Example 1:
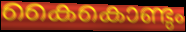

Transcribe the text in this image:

കൈകൊണ്ടും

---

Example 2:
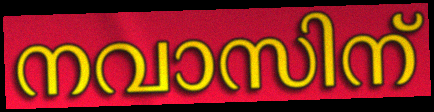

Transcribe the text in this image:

നവാസിന്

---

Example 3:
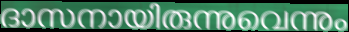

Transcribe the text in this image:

ദാസനായിരുന്നുവെന്നും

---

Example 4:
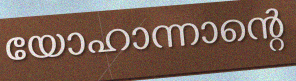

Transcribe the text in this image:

യോഹാന്നാന്റെ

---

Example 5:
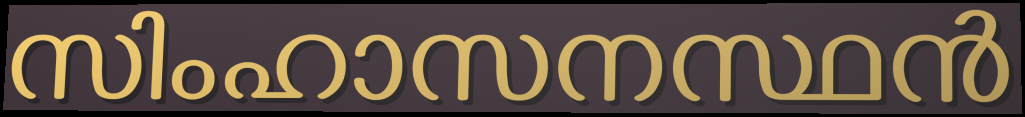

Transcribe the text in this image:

സിംഹാസനസ്ഥൻ